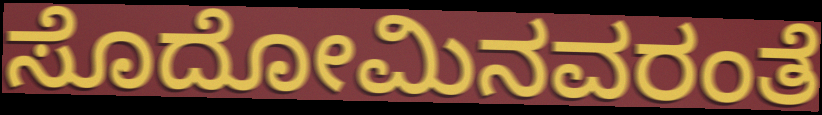
ಸೊದೋಮಿನವರಂತೆ